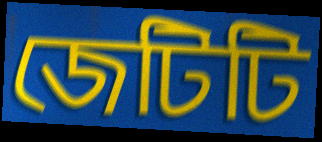
জেটিটি